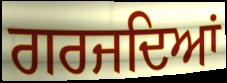
ਗਰਜਦਿਆਂ